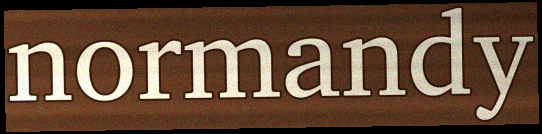
normandy